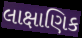
લાક્ષાણિક